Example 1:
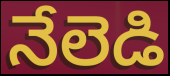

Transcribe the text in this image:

నేలెడి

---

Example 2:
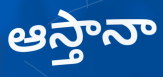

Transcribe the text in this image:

ఆస్తానా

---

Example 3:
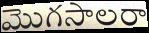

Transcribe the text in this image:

మొగసాలరా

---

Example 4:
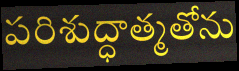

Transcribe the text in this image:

పరిశుద్ధాత్మతోను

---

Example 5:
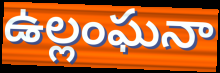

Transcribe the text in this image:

ఉల్లంఘనా